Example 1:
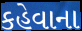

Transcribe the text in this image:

કહેવાના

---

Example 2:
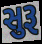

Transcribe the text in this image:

સુરૂ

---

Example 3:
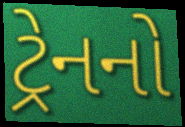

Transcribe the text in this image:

ટ્રેનનો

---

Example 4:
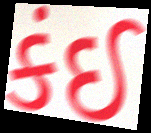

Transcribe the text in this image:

કંઈ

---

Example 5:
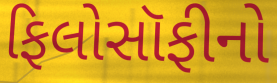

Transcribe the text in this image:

ફિલોસૉફીનો